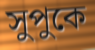
সুপুকে